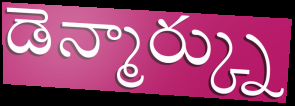
డెన్మార్క్ను